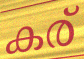
കര്